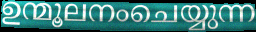
ഉന്മൂലനംചെയ്യുന്ന